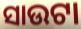
ସାଉଟା